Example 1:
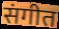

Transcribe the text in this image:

संगीत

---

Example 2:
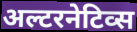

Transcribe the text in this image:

अल्टरनेटिव्स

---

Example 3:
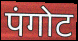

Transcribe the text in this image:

पंगोट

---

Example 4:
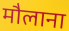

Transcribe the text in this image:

मौलाना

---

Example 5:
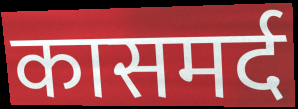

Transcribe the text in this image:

कासमर्द